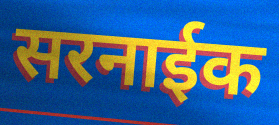
सरनाईक